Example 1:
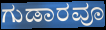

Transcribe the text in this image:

ಗುಡಾರವೂ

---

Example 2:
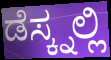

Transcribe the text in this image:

ಡೆಸ್ಕ್ನಲ್ಲಿ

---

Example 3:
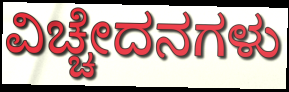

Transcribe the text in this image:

ವಿಚ್ಚೇದನಗಳು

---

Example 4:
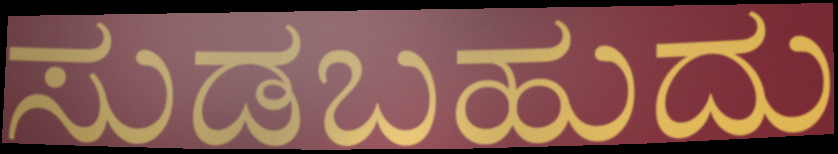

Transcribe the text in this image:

ಸುಡಬಹುದು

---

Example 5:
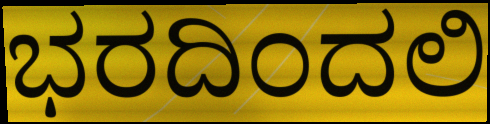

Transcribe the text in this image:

ಭರದಿಂದಲಿ